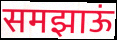
समझाऊं